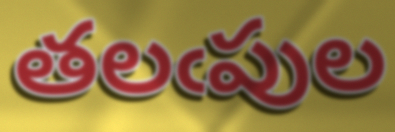
తలఁపుల